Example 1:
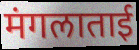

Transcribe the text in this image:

मंगलाताई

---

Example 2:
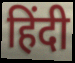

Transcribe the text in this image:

हिंदी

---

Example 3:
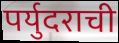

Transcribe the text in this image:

पर्युदराची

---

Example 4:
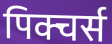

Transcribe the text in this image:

पिक्चर्स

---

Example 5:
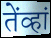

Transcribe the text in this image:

तेंव्हां